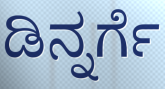
ಡಿನ್ನರ್ಗೆ